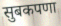
सुबकपणा